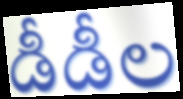
డీడీల